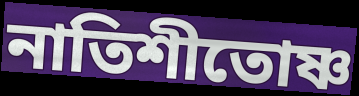
নাতিশীতোষ্ণ